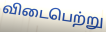
விடைபெற்று